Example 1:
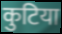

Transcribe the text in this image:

कुटिया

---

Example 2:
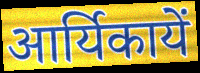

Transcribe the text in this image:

आर्यिकायें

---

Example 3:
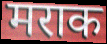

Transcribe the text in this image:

मराक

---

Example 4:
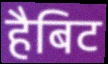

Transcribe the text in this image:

हैबिट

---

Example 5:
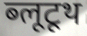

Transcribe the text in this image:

ब्‍लूटूथ